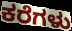
ಕರೆಗಳು